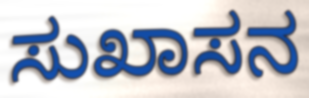
ಸುಖಾಸನ